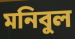
মনিবুল